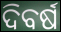
ଦିବର୍ଷ